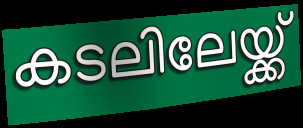
കടലിലേയ്ക്ക്